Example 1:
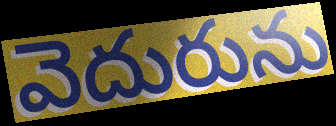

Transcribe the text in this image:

వెదురును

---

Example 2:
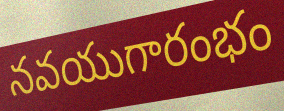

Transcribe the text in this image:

నవయుగారంభం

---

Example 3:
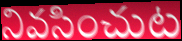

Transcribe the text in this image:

నివసించుట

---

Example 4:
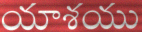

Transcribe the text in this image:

యాశయు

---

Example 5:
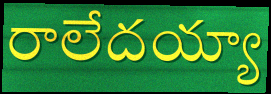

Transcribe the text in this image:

రాలేదయ్యా